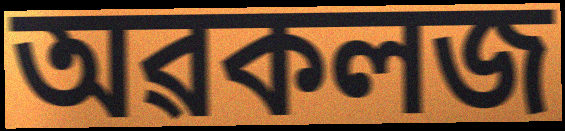
অৱকলজ